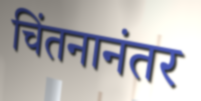
चिंतनानंतर